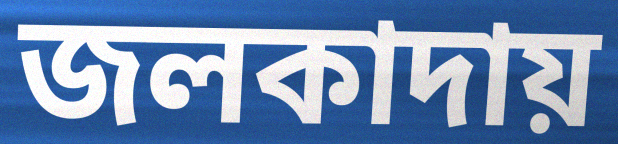
জলকাদায়